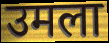
उमला